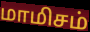
மாமிசம்